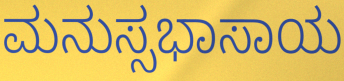
ಮನುಸ್ಸಭಾಸಾಯ